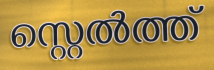
സ്റ്റെൽത്ത്